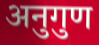
अनुगुण